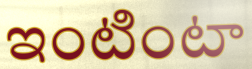
ఇంటింటా